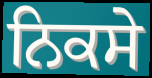
ਨਿਕਸੇ